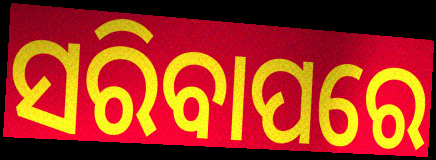
ସରିବାପରେ